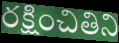
రక్షించితిని